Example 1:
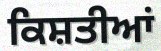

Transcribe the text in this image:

ਕਿਸ਼ਤੀਆਂ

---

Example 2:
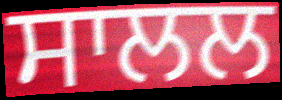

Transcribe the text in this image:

ਸਾਲਲ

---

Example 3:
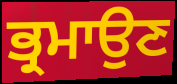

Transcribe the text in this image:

ਭ੍ਰਮਾਉਣ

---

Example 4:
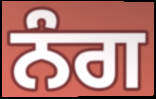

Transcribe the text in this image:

ਨੰਗ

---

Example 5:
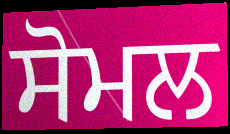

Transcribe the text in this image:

ਸੋਮਲ